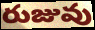
రుజువు